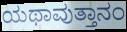
ಯಥಾವುತ್ತಾನಂ